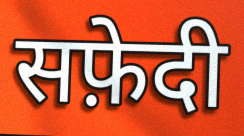
सफ़ेदी